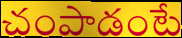
చంపాడంటే